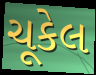
ચૂકેલ